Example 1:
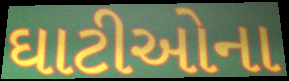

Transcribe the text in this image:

ઘાટીઓના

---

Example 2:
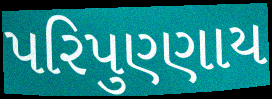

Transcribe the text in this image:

પરિપુણ્ણાય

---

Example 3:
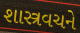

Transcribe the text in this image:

શાસ્ત્રવચને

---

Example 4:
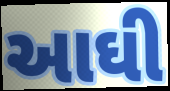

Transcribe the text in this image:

આઘી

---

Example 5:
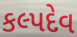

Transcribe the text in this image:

કલ્પદેવ